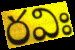
రవిః